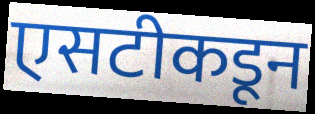
एसटीकडून